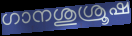
ഗാനശുശ്രൂഷ